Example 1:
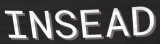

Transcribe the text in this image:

INSEAD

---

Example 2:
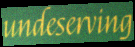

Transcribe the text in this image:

undeserving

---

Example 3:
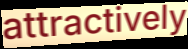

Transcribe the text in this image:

attractively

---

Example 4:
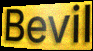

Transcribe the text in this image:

Bevil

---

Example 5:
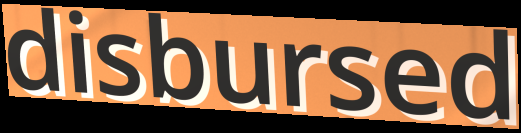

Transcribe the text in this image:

disbursed